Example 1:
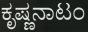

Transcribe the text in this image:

ಕೃಷ್ಣನಾಟಂ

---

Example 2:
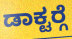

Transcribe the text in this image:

ಡಾಕ್ಟರ್‍ಗೆ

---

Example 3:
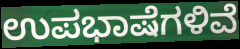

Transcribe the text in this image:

ಉಪಭಾಷೆಗಳಿವೆ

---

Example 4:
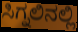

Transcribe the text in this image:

ಸಿಗ್ನಲಿನಲ್ಲಿ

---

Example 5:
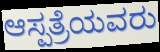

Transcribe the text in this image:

ಆಸ್ಪತ್ರೆಯವರು